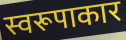
स्वरूपाकार